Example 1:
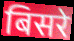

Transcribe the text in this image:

बिसरे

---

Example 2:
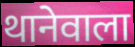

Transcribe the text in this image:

थानेवाला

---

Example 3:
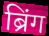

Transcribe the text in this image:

ब्रिंग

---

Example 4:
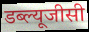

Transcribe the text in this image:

डब्ल्यूजीसी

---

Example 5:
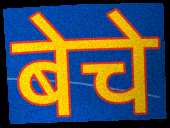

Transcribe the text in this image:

बेचे